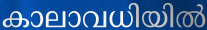
കാലാവധിയിൽ